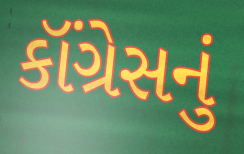
કૉંગ્રેસનું